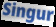
Singur